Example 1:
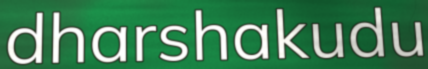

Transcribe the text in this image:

dharshakudu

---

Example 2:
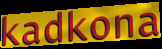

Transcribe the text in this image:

kadkona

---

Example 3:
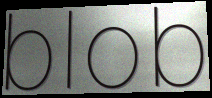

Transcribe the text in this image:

blob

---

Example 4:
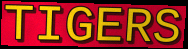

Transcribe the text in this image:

TIGERS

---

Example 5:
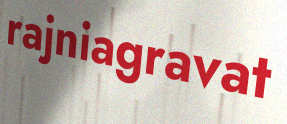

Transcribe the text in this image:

rajniagravat